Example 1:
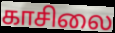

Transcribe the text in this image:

காசிலை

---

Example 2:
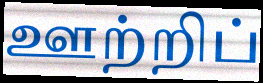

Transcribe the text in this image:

ஊற்றிப்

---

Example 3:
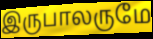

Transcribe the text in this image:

இருபாலருமே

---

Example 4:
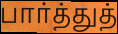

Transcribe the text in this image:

பார்த்துத்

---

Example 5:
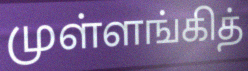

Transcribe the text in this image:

முள்ளங்கித்